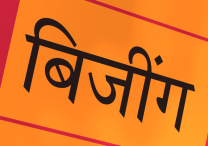
बिजींग